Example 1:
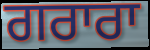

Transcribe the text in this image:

ਗਰਾਰਾ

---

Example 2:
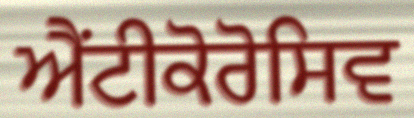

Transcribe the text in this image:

ਐਂਟੀਕੋਰੋਸਿਵ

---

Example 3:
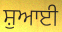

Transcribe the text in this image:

ਸ਼ੁਆਈ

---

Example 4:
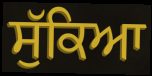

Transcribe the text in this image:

ਸੁੱਕਿਆ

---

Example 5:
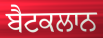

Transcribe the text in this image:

ਬੈਟਕਲਾਨ